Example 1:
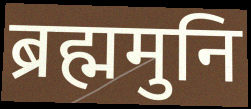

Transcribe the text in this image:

ब्रह्ममुनि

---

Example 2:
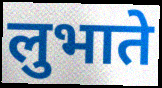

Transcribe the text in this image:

लुभाते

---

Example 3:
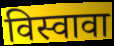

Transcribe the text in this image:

विस्वावा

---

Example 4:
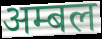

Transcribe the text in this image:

अम्बल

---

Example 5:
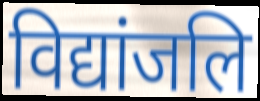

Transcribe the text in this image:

विद्यांजलि